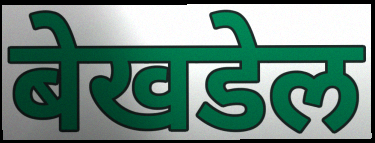
बेखडेल